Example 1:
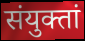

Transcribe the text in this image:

संयुक्तां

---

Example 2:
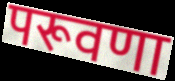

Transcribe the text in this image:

परूवणा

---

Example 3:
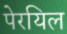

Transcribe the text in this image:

पेरयिल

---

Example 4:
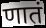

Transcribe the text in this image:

णातं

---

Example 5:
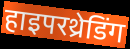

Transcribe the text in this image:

हाइपरथ्रेडिंग